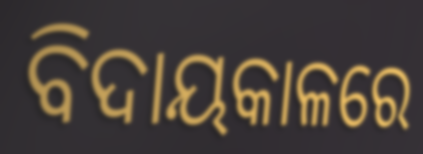
ବିଦାୟକାଳରେ